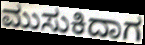
ಮುಸುಕಿದಾಗ